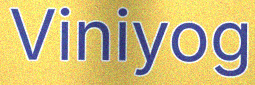
Viniyog